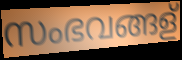
സംഭവങ്ങള്